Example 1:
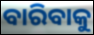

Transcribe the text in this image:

ବାରିବାକୁ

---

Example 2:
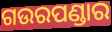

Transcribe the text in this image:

ଗଉରପଣ୍ଡାର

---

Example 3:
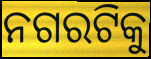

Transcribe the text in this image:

ନଗରଟିକୁ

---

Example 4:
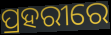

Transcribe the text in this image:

ପ୍ରହରୀରେ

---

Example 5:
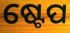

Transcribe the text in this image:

ଷ୍ଟେପ